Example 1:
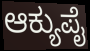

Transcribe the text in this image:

ಆಕ್ಯುಪೈ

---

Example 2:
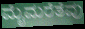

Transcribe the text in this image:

ಮೈಮರೆತೆವು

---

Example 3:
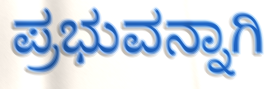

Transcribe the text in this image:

ಪ್ರಭುವನ್ನಾಗಿ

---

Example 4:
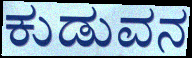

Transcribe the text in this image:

ಕುಡುವನ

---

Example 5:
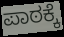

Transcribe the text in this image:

ಪಾಠಕ್ಕೆ